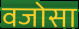
वजोसा